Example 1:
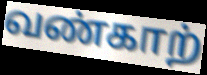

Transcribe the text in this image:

வண்காற்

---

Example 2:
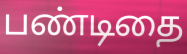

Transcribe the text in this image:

பண்டிதை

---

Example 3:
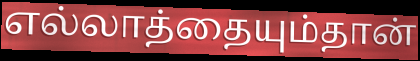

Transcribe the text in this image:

எல்லாத்தையும்தான்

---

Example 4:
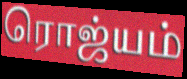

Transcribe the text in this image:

ரொஜ்யம்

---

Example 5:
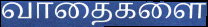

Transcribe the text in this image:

வாதைகளை